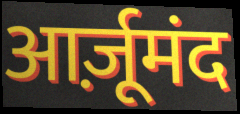
आर्ज़ूमंद